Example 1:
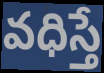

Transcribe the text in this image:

వధిస్తే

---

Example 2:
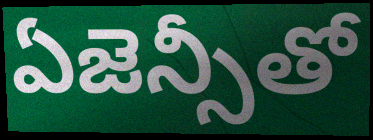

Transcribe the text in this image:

ఏజెన్సీతో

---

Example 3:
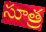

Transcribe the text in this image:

సూత్ర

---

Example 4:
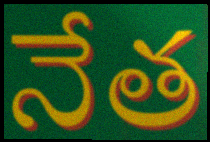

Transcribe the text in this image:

నేత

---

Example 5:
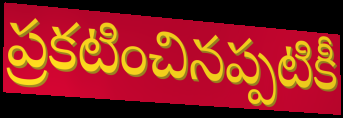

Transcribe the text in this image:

ప్రకటించినప్పటికీ